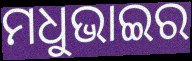
ମଧୁଭାଇର